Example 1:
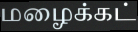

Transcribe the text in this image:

மழைக்கட்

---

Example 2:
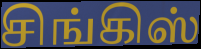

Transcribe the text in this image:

சிங்கிஸ்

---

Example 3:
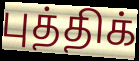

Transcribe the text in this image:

புத்திக்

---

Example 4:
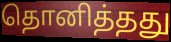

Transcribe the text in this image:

தொனித்தது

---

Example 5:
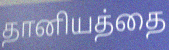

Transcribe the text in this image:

தானியத்தை